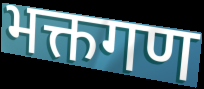
भक्तगण